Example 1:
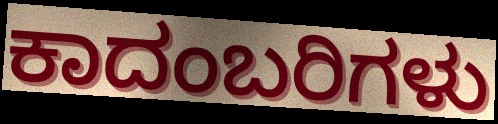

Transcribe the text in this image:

ಕಾದಂಬರಿಗಳು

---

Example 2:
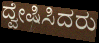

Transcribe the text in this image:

ದ್ವೇಷಿಸಿದರು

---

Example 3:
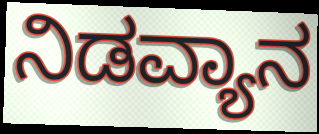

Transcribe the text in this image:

ನಿಡವ್ಯಾನ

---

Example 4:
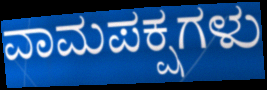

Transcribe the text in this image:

ವಾಮಪಕ್ಷಗಳು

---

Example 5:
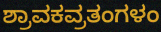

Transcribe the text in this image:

ಶ್ರಾವಕವ್ರತಂಗಳಂ